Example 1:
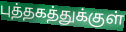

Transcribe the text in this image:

புத்தகத்துக்குள்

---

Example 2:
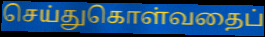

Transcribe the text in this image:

செய்துகொள்வதைப்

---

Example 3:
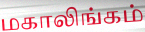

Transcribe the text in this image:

மகாலிங்கம்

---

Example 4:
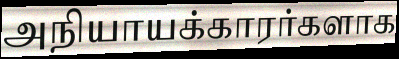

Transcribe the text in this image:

அநியாயக்காரர்களாக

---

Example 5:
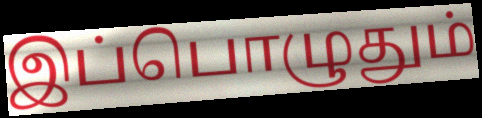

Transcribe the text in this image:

இப்பொழுதும்